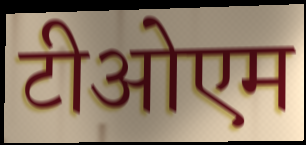
टीओएम